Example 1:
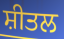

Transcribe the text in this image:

ਸ਼ੀਤਲ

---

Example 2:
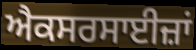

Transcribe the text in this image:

ਐਕਸਰਸਾਈਜ਼ਾਂ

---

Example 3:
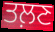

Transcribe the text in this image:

ਤਲ਼ਣ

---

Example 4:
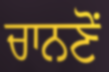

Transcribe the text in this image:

ਚਾਨਣੋਂ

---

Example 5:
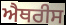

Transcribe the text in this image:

ਐਥਰੀਸ